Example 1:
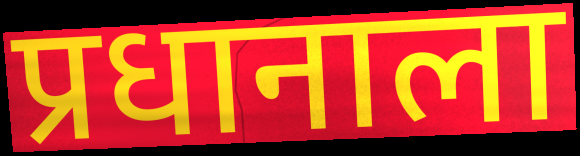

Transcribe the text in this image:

प्रधानाला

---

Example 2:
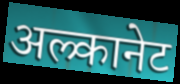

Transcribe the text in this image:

अल्कानेट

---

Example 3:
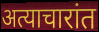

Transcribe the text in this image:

अत्याचारांत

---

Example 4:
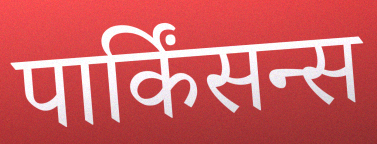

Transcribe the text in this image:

पार्किंसन्स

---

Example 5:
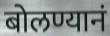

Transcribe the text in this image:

बोलण्यानं